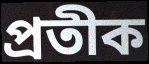
প্রতীক